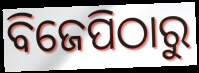
ବିଜେପିଠାରୁ